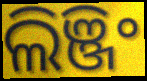
ଲିଞ୍ଜିଂ